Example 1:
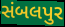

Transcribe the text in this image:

સંબલપુર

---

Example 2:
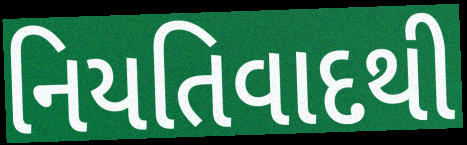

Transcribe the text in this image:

નિયતિવાદથી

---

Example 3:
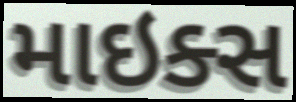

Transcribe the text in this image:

માઇક્સ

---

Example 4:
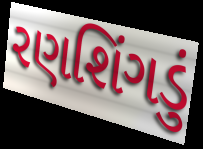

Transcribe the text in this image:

રણશિંગડું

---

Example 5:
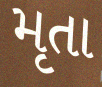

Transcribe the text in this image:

મૃતા